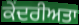
ਕੇਂਦਰੀਅਤਾ